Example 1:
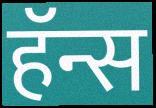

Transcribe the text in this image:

हॅन्स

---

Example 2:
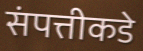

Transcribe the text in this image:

संपत्तीकडे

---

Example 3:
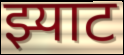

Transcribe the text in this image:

झ्याट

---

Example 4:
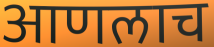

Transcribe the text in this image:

आणलाच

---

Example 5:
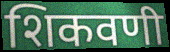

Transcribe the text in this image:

शिकवणी